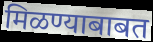
मिळण्याबाबत